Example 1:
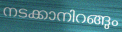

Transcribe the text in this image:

നടക്കാനിറങ്ങും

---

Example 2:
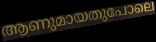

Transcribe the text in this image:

ആണുമായതുപോലെ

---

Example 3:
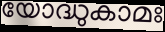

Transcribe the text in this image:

യോദ്ധുകാമഃ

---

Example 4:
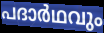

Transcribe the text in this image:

പദാർഥവും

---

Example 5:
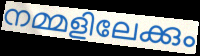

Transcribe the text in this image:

നമ്മളിലേക്കും